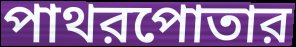
পাথরপোতার